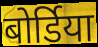
बोर्डिया